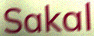
Sakal